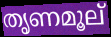
തൃണമൂല്